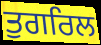
ਤੁਗਰਿਲ